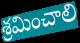
శ్రమించాలి